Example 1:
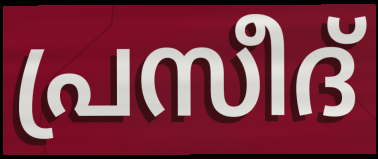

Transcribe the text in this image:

പ്രസീദ്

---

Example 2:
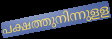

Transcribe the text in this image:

പക്ഷത്തുനിന്നുളള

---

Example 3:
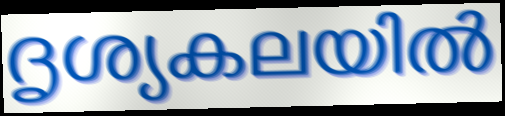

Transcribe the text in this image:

ദൃശ്യകലയിൽ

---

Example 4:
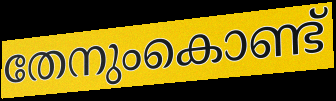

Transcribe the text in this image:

തേനുംകൊണ്ട്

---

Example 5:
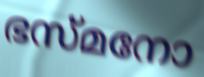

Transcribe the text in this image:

ഭസ്മനോ